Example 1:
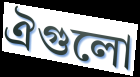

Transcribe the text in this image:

ঐগুলো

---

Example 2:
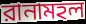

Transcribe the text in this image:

রানামহল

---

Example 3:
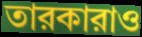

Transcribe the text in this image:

তারকারাও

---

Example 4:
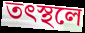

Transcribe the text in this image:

তৎস্থলে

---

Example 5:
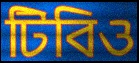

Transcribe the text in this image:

টিবিও